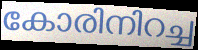
കോരിനിറച്ച